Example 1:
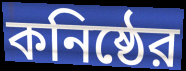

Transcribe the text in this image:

কনিষ্ঠের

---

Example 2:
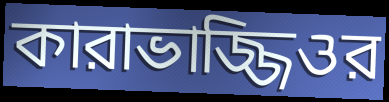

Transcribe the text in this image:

কারাভাজ্জিওর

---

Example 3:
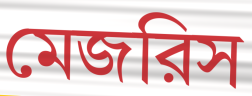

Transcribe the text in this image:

মেজরিস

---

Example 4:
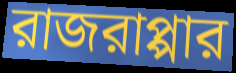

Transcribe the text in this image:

রাজরাপ্পার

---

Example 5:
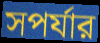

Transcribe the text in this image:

সপর্যার